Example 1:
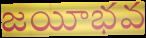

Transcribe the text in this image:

జయీభవ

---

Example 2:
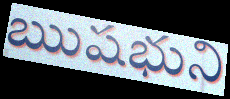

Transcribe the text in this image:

ఋషభుని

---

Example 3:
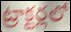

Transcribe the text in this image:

ట్రాక్టర్లలో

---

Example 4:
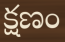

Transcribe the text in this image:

క్షణం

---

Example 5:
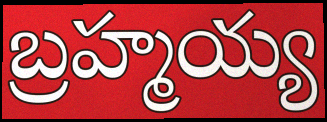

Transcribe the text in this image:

బ్రహ్మయ్య